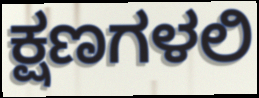
ಕ್ಷಣಗಳಲಿ